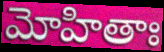
మోహితాః